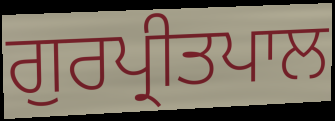
ਗੁਰਪ੍ਰੀਤਪਾਲ